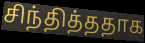
சிந்தித்ததாக